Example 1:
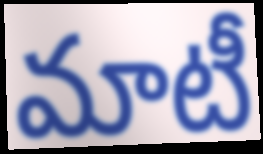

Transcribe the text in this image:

మాటీ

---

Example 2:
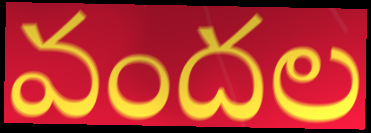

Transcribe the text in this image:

వందల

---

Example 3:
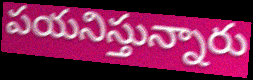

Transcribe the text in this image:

పయనిస్తున్నారు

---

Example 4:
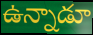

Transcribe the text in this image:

ఉన్నాడూ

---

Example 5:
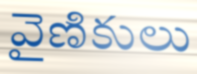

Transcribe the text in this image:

వైణికులు